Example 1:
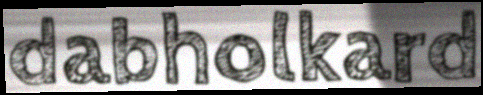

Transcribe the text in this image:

dabholkard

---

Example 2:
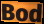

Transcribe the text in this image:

Bod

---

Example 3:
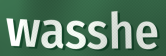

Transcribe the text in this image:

wasshe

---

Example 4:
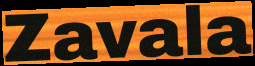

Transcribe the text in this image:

Zavala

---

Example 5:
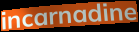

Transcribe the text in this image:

incarnadine